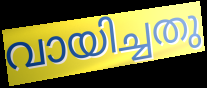
വായിച്ചതു